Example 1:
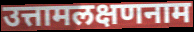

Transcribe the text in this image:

उत्तामलक्षणनाम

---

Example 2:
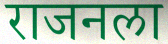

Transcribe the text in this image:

राजनला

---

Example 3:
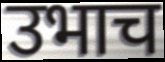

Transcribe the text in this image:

उभाच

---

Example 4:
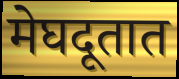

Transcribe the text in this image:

मेघदूतात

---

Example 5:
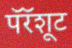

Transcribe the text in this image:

पॅरॅशूट